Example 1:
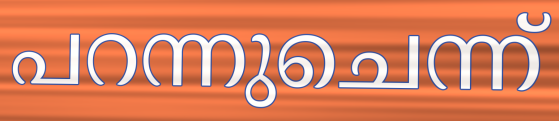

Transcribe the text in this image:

പറന്നുചെന്ന്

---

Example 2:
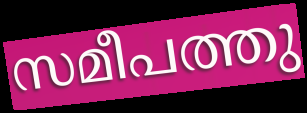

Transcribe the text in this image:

സമീപത്തു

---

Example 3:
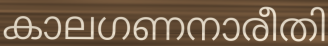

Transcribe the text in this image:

കാലഗണനാരീതി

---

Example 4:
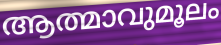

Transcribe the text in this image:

ആത്മാവുമൂലം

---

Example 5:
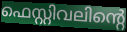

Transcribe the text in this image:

ഫെസ്റ്റിവലിന്റെ